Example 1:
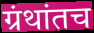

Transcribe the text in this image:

ग्रंथांतच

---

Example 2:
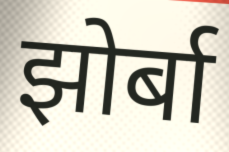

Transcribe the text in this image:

झोर्बा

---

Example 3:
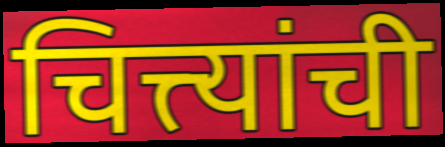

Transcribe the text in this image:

चित्त्यांची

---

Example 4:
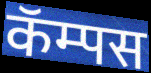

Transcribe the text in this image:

कॅम्पस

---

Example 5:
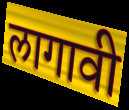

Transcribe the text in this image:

लागावी